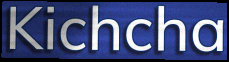
Kichcha